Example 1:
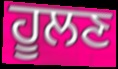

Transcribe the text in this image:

ਹੂਲਣ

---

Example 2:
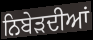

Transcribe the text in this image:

ਨਿਬੇੜਦੀਆਂ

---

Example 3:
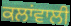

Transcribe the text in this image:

ਕਲਾਂਵਾਲੀ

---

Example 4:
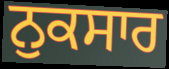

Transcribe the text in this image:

ਨੁਕਸਾਰ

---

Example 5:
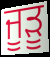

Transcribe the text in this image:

ਜੂੜੂ